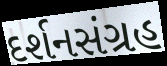
દર્શનસંગ્રહ